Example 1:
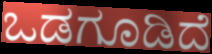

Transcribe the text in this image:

ಒಡಗೂಡಿದೆ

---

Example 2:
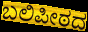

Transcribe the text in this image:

ಬಲಿಪೀಠದ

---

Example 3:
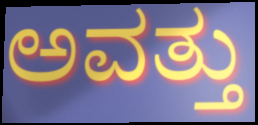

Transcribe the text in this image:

ಅವತ್ತು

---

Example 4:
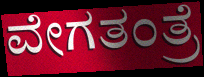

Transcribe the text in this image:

ವೇಗತಂತ್ರೆ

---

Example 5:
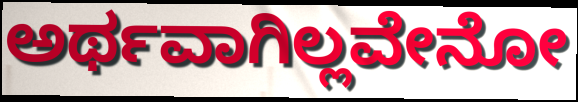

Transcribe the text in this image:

ಅರ್ಥವಾಗಿಲ್ಲವೇನೋ